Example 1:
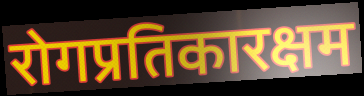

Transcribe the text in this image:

रोगप्रतिकारक्षम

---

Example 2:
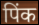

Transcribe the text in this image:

पिंक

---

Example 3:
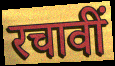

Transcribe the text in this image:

रचावीं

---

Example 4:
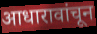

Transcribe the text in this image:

आधारावांचून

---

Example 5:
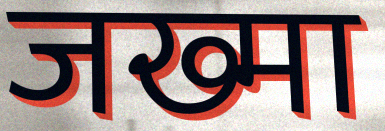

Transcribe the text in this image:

जख्मा